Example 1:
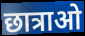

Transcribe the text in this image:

छात्राओ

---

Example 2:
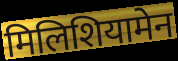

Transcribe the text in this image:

मिलिशियामेन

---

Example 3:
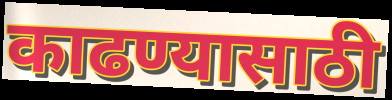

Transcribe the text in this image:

काढण्यासाठी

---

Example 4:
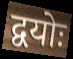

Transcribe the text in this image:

द्वयोः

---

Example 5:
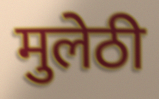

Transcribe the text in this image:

मुलेठी